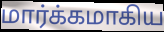
மார்க்கமாகிய